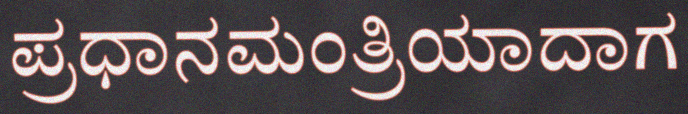
ಪ್ರಧಾನಮಂತ್ರಿಯಾದಾಗ